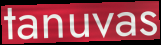
tanuvas